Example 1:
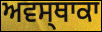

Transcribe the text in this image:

ਅਵਸ੍ਥਾਕਾ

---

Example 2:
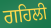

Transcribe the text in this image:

ਗਹਿਲੀ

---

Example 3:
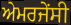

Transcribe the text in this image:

ਅੇਮਰਜੇਂਸੀ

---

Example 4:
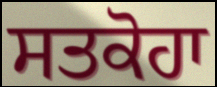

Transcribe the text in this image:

ਸਤਕੋਹਾ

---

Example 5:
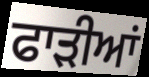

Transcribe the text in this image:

ਫਾੜੀਆਂ